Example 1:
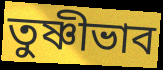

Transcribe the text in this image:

তুষ্ণীভাব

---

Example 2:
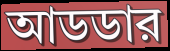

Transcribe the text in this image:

আডডার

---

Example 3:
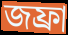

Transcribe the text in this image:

জফ্রা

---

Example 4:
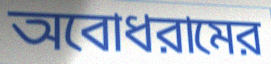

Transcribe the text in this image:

অবোধরামের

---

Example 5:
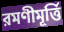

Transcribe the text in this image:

রমণীমূর্ত্তি